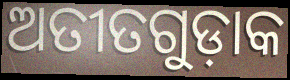
ଅତୀତଗୁଡ଼ାକ